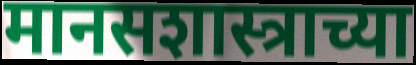
मानसशास्त्राच्या